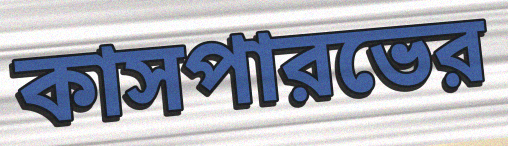
কাসপারভের